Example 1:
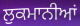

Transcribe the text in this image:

ਲੁਕਮਾਨੀਆਂ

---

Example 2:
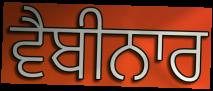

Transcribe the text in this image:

ਵੈਬੀਨਾਰ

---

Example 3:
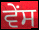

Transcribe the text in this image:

ਵੇਂਸ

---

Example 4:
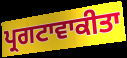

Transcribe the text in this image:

ਪ੍ਰਗਟਾਵਾਕੀਤਾ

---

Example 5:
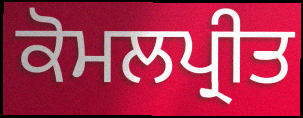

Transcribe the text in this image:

ਕੋਮਲਪ੍ਰੀਤ